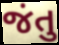
જંતુ